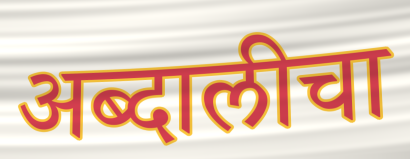
अब्दालीचा